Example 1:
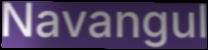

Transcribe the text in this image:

Navangul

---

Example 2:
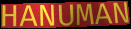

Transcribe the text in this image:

HANUMAN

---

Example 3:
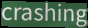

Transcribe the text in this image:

crashing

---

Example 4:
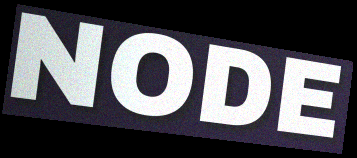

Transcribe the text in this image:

NODE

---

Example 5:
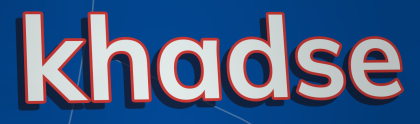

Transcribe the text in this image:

khadse